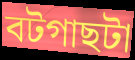
বটগাছটা